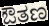
ಔತಣ